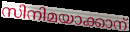
സിനിമയാക്കാന്